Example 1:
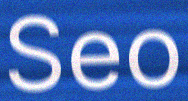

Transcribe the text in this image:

Seo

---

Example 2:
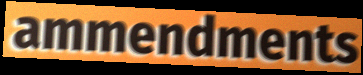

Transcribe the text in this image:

ammendments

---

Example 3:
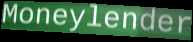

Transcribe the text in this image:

Moneylender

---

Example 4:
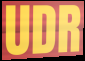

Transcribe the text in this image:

UDR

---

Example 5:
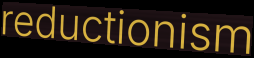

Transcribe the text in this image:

reductionism